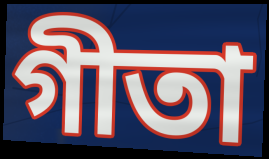
গীতা